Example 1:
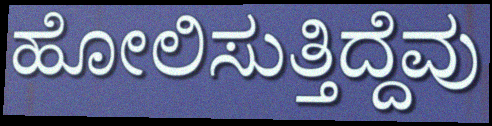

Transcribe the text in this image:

ಹೋಲಿಸುತ್ತಿದ್ದೆವು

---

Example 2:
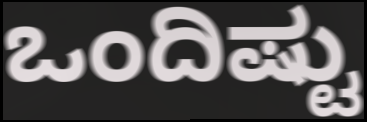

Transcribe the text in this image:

ಒಂದಿಷ್ಟು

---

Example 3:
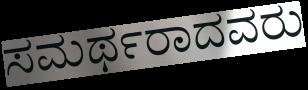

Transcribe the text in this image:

ಸಮರ್ಥರಾದವರು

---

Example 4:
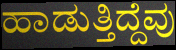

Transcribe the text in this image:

ಹಾಡುತ್ತಿದ್ದೆವು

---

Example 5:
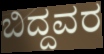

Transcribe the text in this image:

ಬಿದ್ದವರ